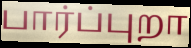
பார்ப்புறா